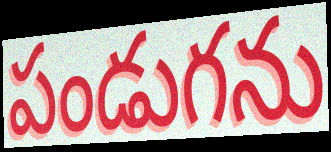
పండుగను